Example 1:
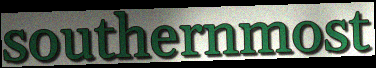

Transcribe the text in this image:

southernmost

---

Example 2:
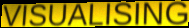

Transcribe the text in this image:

VISUALISING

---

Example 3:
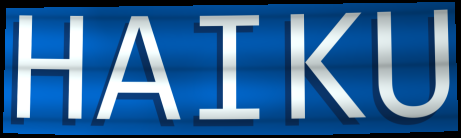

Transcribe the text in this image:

HAIKU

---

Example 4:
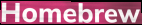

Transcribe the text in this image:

Homebrew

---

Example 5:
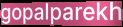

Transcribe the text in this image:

gopalparekh